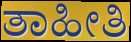
ತಾಹೀತಿ